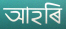
আহৰি